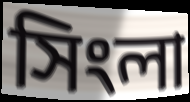
সিংলা